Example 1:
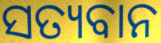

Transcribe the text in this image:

ସତ୍ୟବାନ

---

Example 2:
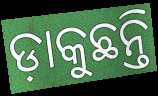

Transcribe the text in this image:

ଡ଼ାକୁଛନ୍ତି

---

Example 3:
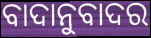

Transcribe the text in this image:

ବାଦାନୁବାଦର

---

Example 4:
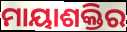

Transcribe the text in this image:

ମାୟାଶକ୍ତିର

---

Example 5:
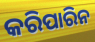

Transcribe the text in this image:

କରିପାରିନ